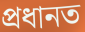
প্ৰধানত